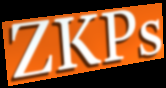
ZKPs